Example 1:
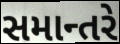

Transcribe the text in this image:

સમાન્તરે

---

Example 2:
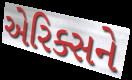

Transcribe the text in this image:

એરિક્સને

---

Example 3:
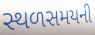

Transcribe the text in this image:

સ્થળસમયની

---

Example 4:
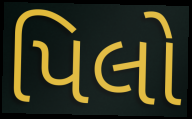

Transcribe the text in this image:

પિલો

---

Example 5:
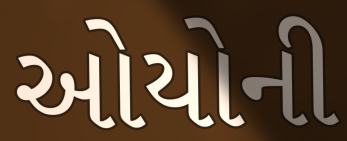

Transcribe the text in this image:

ઓયોની